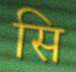
सि